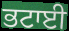
ਭਟਾਈ